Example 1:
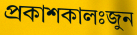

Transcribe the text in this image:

প্রকাশকালঃজুন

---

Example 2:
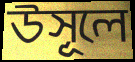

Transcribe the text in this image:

উসূলে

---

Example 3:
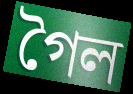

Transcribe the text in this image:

গৈল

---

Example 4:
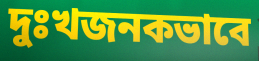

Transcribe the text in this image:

দুঃখজনকভাবে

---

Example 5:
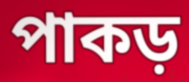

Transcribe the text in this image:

পাকড়